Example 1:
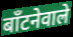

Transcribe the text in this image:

बाँटनेवाले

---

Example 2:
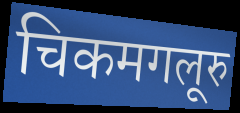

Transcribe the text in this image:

चिकमगलूरु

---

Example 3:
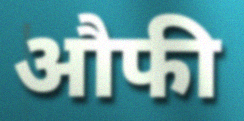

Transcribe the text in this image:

औफी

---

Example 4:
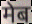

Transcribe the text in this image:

मेब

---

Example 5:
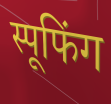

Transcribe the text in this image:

स्पूफिंग